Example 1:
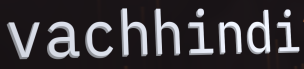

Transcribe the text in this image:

vachhindi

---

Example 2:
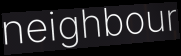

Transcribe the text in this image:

neighbour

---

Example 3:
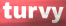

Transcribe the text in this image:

turvy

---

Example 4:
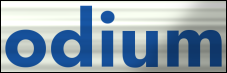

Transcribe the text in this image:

odium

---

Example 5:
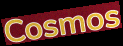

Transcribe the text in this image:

Cosmos